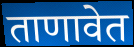
ताणावेत